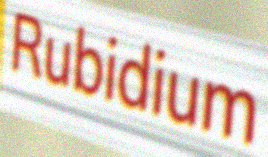
Rubidium